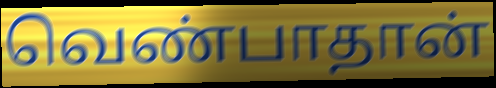
வெண்பாதான்